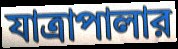
যাত্রাপালার